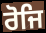
ਰੋਜਿ